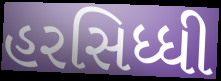
હરસિધ્ધી